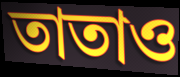
তাতাও